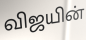
விஜயின்